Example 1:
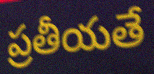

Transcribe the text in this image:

ప్రతీయతే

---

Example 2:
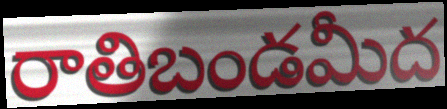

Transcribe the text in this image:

రాతిబండమీద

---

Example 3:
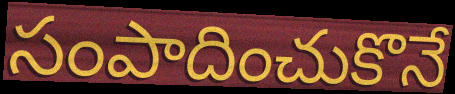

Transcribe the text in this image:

సంపాదించుకొనే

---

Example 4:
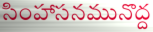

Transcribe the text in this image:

సింహాసనమునొద్ద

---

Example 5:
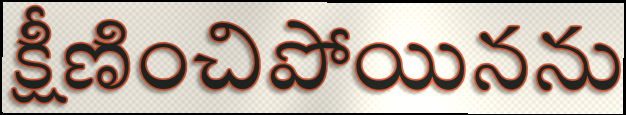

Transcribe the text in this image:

క్షీణించిపోయినను